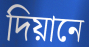
দিয়ানে